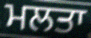
ਮਲਤਾ